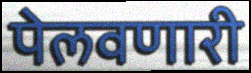
पेलवणारी